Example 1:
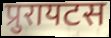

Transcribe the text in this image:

प्रुरायटस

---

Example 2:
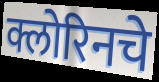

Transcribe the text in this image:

क्लोरिनचे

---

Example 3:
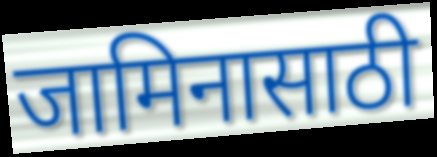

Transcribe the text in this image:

जामिनासाठी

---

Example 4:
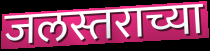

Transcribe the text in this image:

जलस्तराच्या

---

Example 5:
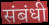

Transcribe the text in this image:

संबंधी